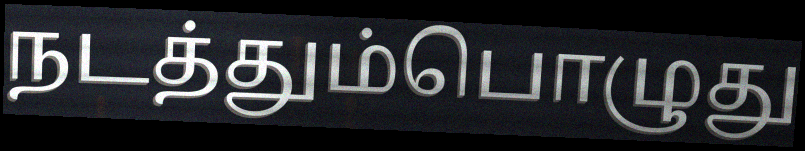
நடத்தும்பொழுது